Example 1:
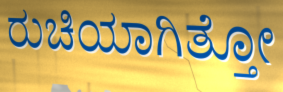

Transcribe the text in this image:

ರುಚಿಯಾಗಿತ್ತೋ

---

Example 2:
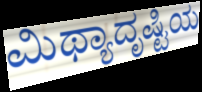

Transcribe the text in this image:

ಮಿಥ್ಯಾದೃಷ್ಟಿಯ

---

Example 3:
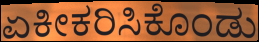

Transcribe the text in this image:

ಏಕೀಕರಿಸಿಕೊಂಡು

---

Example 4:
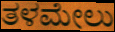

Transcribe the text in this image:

ತಳಮೇಲು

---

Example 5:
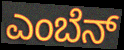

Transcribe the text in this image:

ಎಂಬೆನ್